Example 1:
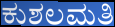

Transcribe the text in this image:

ಕುಶಲಮತಿ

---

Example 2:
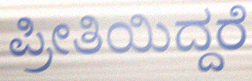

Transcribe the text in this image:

ಪ್ರೀತಿಯಿದ್ದರೆ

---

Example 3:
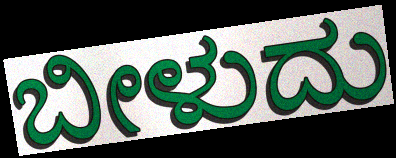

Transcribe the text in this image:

ಬೀಳುದು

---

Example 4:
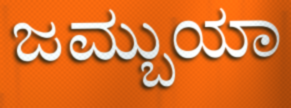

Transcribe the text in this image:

ಜಮ್ಬುಯಾ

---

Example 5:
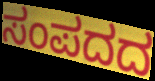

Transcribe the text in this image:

ಸಂಪದದ